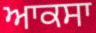
ਆਕਸਾ